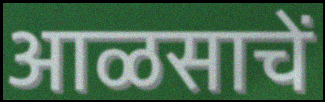
आळसाचें